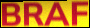
BRAF